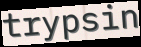
trypsin